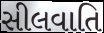
સીલવાતિ